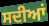
ਸਦੀਆਂ